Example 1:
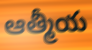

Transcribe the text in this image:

ఆత్మీయ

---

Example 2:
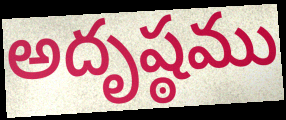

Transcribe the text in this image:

అదృష్ఠము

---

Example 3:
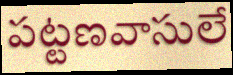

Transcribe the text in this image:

పట్టణవాసులే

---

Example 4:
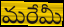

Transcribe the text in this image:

మరేమీ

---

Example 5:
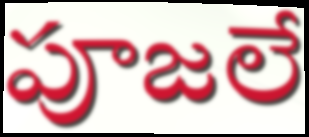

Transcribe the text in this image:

పూజలే